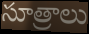
సూత్రాలు